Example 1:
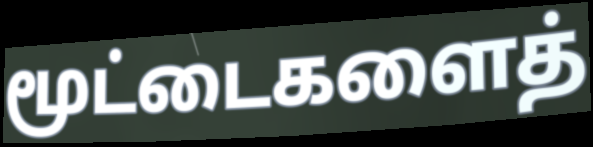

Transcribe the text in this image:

மூட்டைகளைத்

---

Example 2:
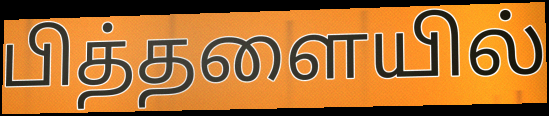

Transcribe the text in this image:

பித்தளையில்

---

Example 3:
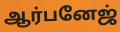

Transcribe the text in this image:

ஆர்பனேஜ்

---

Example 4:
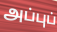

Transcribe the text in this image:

அப்புப்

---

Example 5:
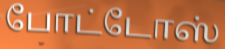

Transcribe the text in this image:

போட்டோஸ்